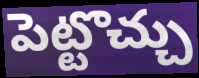
పెట్టొచ్చు